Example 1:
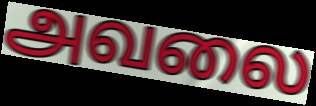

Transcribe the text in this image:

அவலை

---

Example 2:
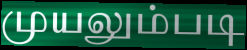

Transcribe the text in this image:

முயலும்படி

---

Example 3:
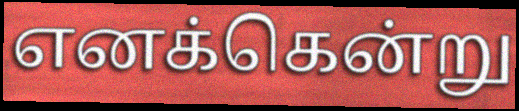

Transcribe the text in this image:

எனக்கென்று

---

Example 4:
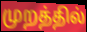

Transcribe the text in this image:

முறத்தில்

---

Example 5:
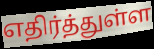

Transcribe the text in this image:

எதிர்த்துள்ள